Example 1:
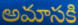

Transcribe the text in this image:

అమాసకి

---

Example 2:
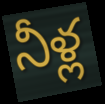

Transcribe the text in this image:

నీళ్ల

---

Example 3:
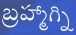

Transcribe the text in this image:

బ్రహ్మాగ్ని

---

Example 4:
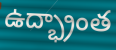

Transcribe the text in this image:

ఉద్భ్రాంత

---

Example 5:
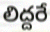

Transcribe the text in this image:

లిద్దరే